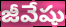
జీవేషు